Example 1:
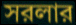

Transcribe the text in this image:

সরলার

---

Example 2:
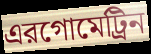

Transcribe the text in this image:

এরগোমেট্রিন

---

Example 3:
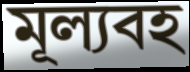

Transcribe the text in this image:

মূল্যবহ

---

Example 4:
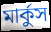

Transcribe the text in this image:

মার্কুস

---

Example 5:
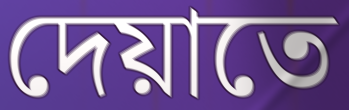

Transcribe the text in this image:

দেয়াতে